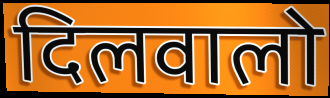
दिलवालो